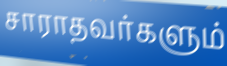
சாராதவர்களும்